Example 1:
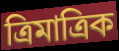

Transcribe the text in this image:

ত্রিমাত্রিক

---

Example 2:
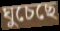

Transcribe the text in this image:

ঘুচেছে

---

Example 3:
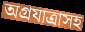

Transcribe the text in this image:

অগ্রযাত্রাসহ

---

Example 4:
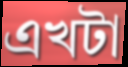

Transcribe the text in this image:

এখটা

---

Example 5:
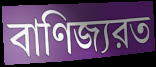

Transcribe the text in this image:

বাণিজ্যরত